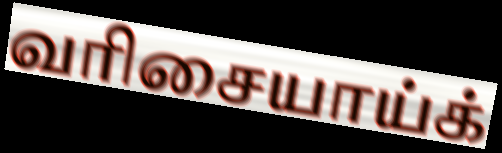
வரிசையாய்க்